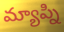
మ్యాప్ని